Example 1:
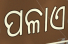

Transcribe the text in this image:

ପଳାଏ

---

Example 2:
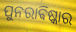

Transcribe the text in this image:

ପୁନରାଵିଷ୍କାର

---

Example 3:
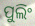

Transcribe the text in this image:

ପୁଲିଂ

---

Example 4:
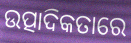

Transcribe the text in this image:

ଉତ୍ପାଦିକତାରେ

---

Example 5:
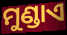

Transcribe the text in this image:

ମୁଣ୍ଡାଏ